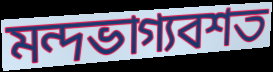
মন্দভাগ্যবশত